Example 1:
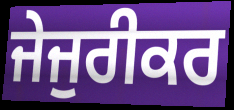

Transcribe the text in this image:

ਜੇਜੁਰੀਕਰ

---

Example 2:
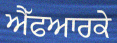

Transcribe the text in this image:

ਐੱਫਆਰਕੇ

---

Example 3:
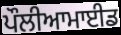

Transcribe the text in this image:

ਪੌਲੀਆਮਾਈਡ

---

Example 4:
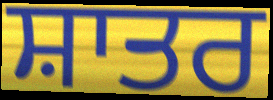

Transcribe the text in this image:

ਸ਼ਾਤਰ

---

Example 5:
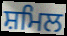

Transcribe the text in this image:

ਸ਼ਮਿਲ